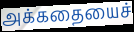
அக்கதையைச்